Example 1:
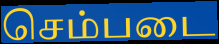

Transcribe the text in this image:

செம்படை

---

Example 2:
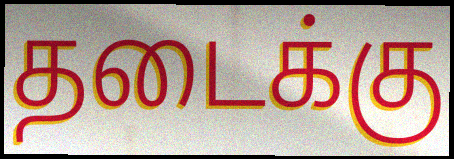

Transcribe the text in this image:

தடைக்கு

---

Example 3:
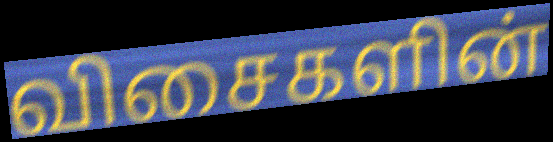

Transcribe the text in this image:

விசைகளின்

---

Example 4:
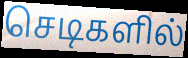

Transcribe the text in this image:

செடிகளில்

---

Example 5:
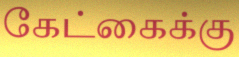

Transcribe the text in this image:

கேட்கைக்கு